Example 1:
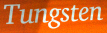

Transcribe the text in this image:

Tungsten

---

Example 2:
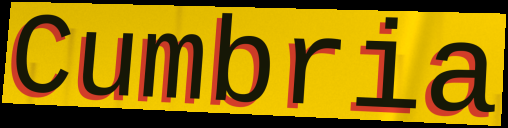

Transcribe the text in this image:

Cumbria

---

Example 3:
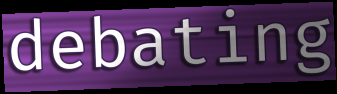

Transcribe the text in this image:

debating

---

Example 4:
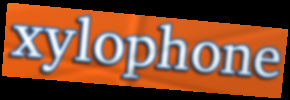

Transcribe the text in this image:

xylophone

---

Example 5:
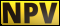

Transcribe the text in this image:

NPV